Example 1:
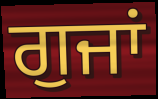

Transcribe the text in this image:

ਗੁਜਾਂ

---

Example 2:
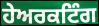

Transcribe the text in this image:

ਹੇਅਰਕਟਿੰਗ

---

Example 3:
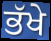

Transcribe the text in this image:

ਭੱਖੇ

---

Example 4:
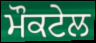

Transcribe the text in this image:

ਮੌਕਟੇਲ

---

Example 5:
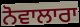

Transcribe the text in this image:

ਨੋਵਾਲਾਰਾ